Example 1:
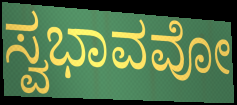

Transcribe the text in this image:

ಸ್ವಭಾವವೋ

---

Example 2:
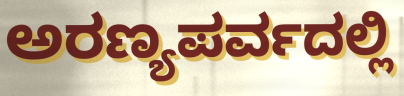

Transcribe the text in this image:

ಅರಣ್ಯಪರ್ವದಲ್ಲಿ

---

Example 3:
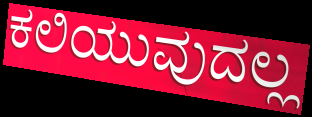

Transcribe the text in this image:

ಕಲಿಯುವುದಲ್ಲ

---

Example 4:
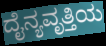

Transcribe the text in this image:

ದೈನ್ಯವೃತ್ತಿಯ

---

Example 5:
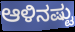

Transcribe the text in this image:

ಆಳಿನಷ್ಟು